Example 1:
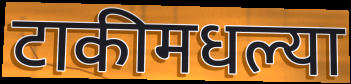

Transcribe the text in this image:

टाकीमधल्या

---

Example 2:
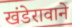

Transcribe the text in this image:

खंडेरावाने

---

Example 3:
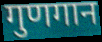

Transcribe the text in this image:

गुणगान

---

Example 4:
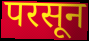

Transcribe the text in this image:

परसून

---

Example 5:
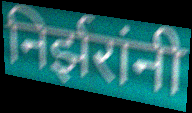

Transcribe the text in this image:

निर्झरांनी